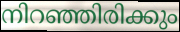
നിറഞ്ഞിരിക്കും